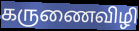
கருணைவிழி